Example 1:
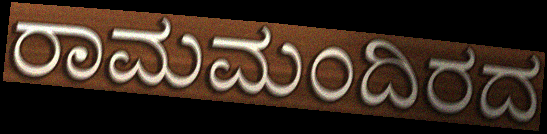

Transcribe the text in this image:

ರಾಮಮಂದಿರದ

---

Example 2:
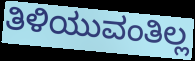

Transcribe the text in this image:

ತಿಳಿಯುವಂತಿಲ್ಲ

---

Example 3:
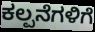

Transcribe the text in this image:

ಕಲ್ಪನೆಗಳಿಗೆ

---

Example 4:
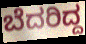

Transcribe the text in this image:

ಬೆದರಿದ್ದ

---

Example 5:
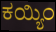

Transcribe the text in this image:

ಕಯ್ಯಿಂ